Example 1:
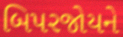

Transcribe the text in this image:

બિપરજોયને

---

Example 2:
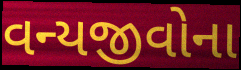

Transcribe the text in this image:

વન્યજીવોના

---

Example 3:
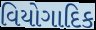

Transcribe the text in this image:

વિયોગાદિક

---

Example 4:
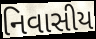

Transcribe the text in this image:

નિવાસીય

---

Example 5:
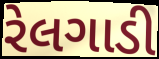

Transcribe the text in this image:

રેલગાડી